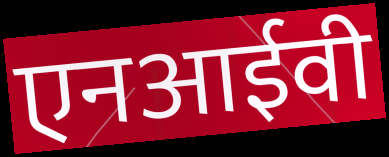
एनआईवी